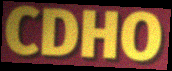
CDHO